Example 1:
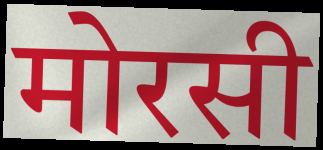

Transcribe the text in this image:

मोरसी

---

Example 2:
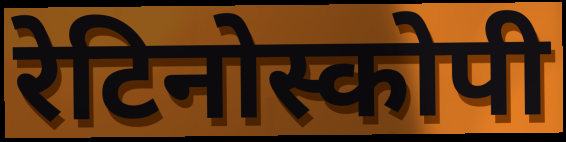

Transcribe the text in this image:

रेटिनोस्कोपी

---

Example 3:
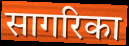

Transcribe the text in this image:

सागरिका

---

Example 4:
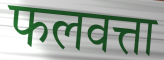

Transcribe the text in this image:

फलवत्ता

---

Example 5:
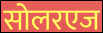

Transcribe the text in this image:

सोलरएज